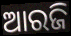
ଆରଜି